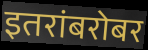
इतरांबरोबर